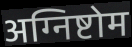
अग्निष्टोम